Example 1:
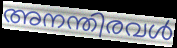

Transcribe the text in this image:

അനന്തിരവൾ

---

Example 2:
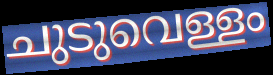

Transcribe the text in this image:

ചുടുവെള്ളം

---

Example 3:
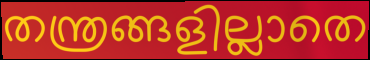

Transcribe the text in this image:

തന്ത്രങ്ങളില്ലാതെ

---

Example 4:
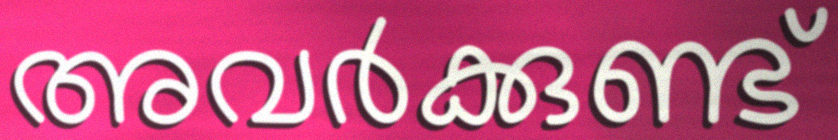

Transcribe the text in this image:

അവർക്കുണ്ട്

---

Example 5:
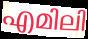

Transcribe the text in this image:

എമിലി